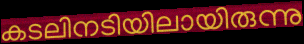
കടലിനടിയിലായിരുന്നു